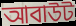
আবাউট